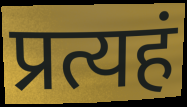
प्रत्यहं